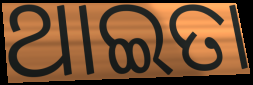
ଥାଇତା